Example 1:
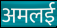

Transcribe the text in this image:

अमलई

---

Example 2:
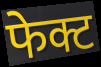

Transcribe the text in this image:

फेक्ट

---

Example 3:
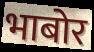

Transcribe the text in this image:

भाबोर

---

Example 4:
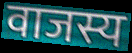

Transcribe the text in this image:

वाजस्य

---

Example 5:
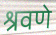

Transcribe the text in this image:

श्रवणे